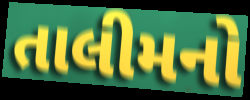
તાલીમનો